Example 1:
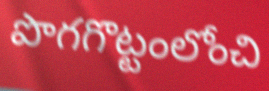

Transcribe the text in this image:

పొగగొట్టంలోంచి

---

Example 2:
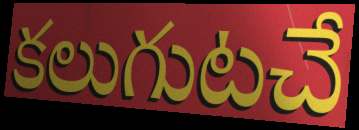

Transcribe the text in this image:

కలుగుటచే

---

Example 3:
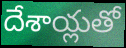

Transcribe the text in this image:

దేశాయ్లతో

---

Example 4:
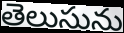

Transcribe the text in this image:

తెలుసును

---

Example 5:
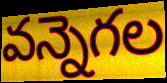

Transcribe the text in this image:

వన్నెగల